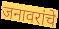
जनावरांचे